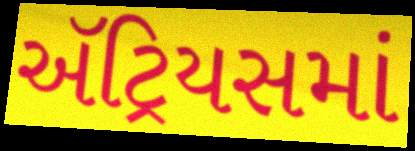
ઍટ્રિયસમાં